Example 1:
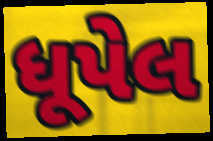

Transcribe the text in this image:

ધૂપેલ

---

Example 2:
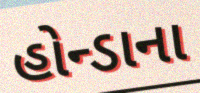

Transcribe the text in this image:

હોન્ડાના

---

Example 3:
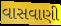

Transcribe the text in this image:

વાસવાણી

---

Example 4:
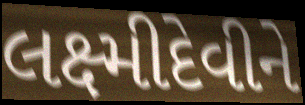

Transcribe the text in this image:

લક્ષ્મીદેવીને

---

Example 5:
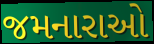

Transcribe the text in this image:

જમનારાઓ